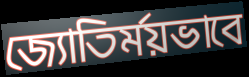
জ্যোতির্ময়ভাবে